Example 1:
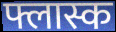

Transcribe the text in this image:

फ्लास्क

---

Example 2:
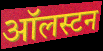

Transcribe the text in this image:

ऑलस्टन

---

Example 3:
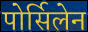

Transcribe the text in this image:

पोर्सिलेन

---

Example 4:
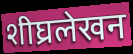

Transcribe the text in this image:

शीघ्रलेखन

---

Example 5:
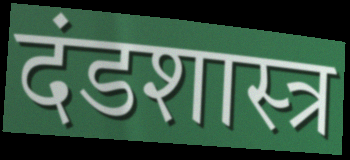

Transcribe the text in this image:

दंडशास्त्र